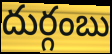
దుర్గంబు